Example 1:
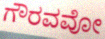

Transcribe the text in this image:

ಗೌರವವೋ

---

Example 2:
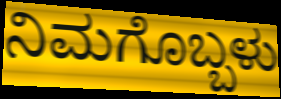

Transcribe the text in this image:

ನಿಮಗೊಬ್ಬಳು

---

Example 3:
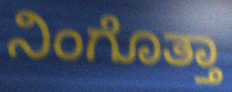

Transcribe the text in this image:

ನಿಂಗೊತ್ತಾ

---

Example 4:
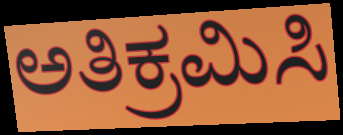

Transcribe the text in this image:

ಅತಿಕ್ರಮಿಸಿ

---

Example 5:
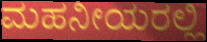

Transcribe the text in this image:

ಮಹನೀಯರಲ್ಲಿ